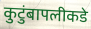
कुटुंबापलीकडे